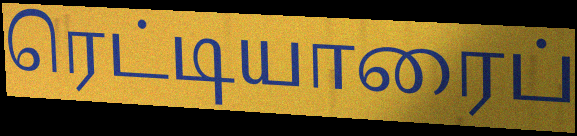
ரெட்டியாரைப்